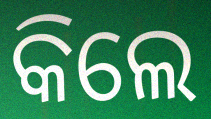
କିଲେ